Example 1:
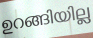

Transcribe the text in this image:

ഉറങ്ങിയില്ല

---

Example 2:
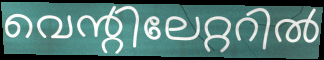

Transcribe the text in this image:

വെന്റിലേറ്ററിൽ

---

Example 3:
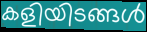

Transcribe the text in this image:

കളിയിടങ്ങൾ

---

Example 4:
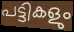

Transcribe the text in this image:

പട്ടികളും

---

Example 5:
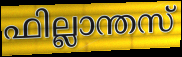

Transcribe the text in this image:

ഫില്ലാന്തസ്